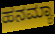
ಹನಮ್ಯಾ